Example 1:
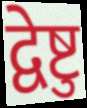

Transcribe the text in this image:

द्वेष्टु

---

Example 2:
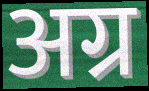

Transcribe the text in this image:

अग्र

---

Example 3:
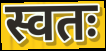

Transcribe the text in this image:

स्वतः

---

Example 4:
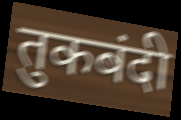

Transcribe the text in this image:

तुकबंदी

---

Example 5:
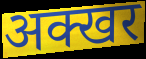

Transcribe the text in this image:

अक्खर